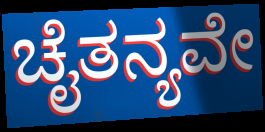
ಚೈತನ್ಯವೇ